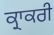
ਕ੍ਰਾਕਰੀ